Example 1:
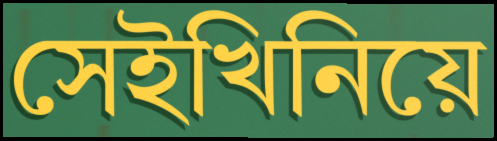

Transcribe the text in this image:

সেইখিনিয়ে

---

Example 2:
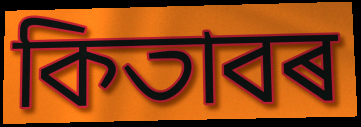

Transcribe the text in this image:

কিতাবৰ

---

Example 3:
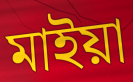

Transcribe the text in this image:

মাইয়া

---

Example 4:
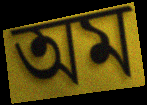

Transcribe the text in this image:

অম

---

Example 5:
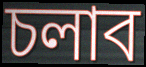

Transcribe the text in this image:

চলাব